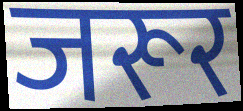
जरूर